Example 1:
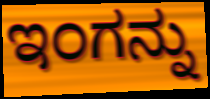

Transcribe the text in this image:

ಇಂಗನ್ನು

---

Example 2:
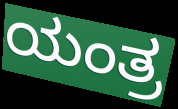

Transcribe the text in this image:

ಯಂತ್ರ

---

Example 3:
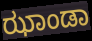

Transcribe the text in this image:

ಝಾಂಡಾ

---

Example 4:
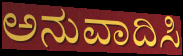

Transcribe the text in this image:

ಅನುವಾದಿಸಿ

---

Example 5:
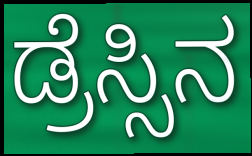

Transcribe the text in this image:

ಡ್ರೆಸ್ಸಿನ